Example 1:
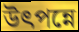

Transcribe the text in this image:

উৎপন্নে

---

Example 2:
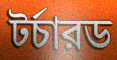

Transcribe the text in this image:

টর্চারড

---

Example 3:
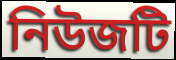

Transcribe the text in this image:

নিউজটি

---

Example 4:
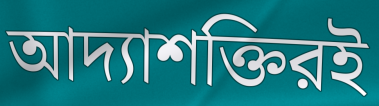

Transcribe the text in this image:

আদ্যাশক্তিরই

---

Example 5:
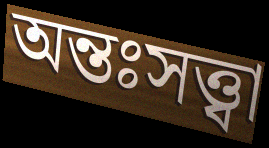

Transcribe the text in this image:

অন্তঃসত্ত্বা